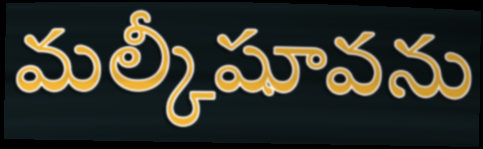
మల్కీషూవను